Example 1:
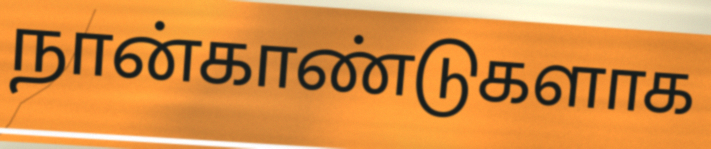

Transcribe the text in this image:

நான்காண்டுகளாக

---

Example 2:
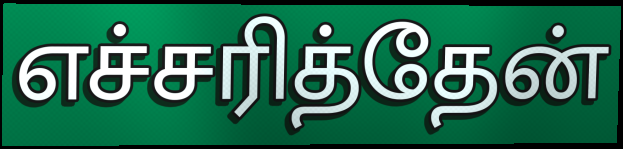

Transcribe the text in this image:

எச்சரித்தேன்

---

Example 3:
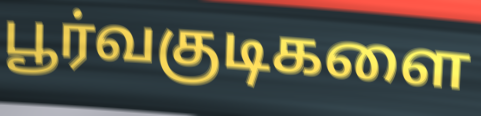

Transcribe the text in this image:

பூர்வகுடிகளை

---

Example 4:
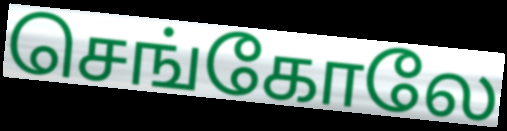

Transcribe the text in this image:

செங்கோலே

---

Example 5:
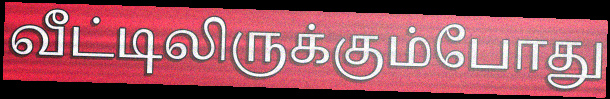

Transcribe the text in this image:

வீட்டிலிருக்கும்போது